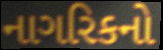
નાગરિકનો